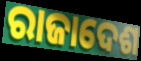
ରାଜାଦେଶ